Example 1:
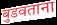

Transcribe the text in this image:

बुडवताना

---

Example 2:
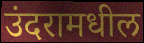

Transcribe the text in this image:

उंदरामधील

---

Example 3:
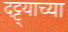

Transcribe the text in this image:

दट्ट्याच्या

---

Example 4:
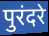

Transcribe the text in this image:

पुरंदरे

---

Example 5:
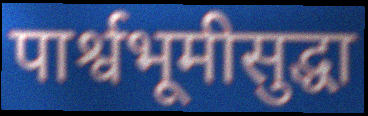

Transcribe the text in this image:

पार्श्वभूमीसुद्धा